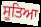
ਸੂਤਿਆ